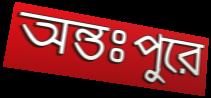
অন্তঃপুরে